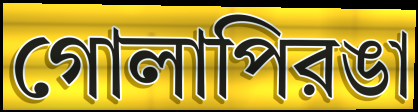
গোলাপিরঙা